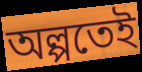
অল্পতেই